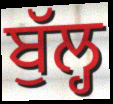
ਬੁੱਲ੍ਹ